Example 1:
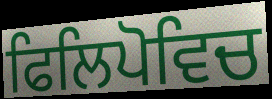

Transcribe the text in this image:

ਫਿਲਿਪੋਵਿਚ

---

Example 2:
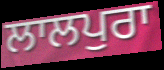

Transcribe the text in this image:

ਲਾਲਪੁਰਾ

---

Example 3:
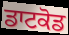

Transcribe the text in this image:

ਡਾਟਕੋਡ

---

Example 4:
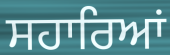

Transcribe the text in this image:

ਸਹਾਰਿਆਂ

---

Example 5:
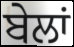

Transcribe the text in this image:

ਬੇਲਾਂ